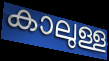
കാലുള്ള